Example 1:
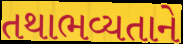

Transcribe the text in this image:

તથાભવ્યતાને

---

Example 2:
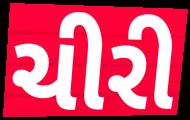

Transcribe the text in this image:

ચીરી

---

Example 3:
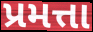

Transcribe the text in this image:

પ્રમત્તા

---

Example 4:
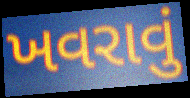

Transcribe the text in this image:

ખવરાવું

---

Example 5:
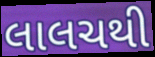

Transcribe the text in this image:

લાલચથી